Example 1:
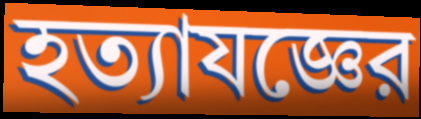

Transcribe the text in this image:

হত্যাযজ্ঞের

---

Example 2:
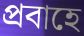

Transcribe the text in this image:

প্রবাহে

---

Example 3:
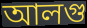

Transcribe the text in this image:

আলগু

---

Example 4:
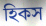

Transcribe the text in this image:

হিকস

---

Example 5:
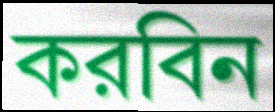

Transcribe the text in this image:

করবিন